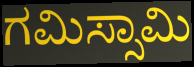
ಗಮಿಸ್ಸಾಮಿ